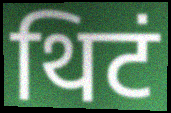
थिटं